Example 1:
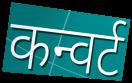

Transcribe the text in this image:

कन्वर्ट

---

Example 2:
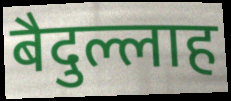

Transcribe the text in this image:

बैदुल्लाह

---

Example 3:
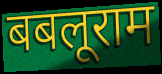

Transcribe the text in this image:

बबलूराम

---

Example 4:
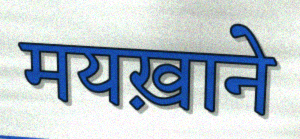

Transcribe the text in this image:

मयख़ाने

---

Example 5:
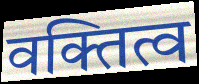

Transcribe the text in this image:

वक्तित्व